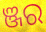
ଞ୍ଜର